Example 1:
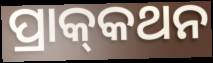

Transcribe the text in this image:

ପ୍ରାକ୍‌କଥନ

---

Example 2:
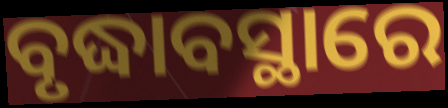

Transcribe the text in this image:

ବୃଦ୍ଧାବସ୍ଥାରେ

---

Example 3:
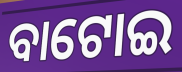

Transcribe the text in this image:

ବାଟୋଇ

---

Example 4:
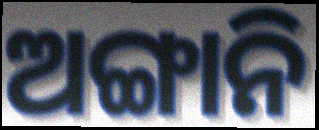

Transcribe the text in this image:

ଅଙ୍ଗାନି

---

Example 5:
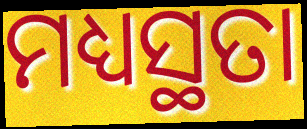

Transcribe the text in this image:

ମଧ୍ୟସ୍ଥତା